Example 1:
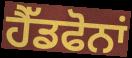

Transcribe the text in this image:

ਹੈੱਡਫੋਨਾਂ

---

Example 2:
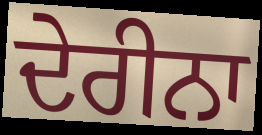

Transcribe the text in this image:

ਦੇਰੀਨਾ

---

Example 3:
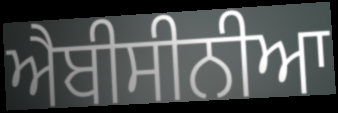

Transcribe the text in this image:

ਐਬੀਸੀਨੀਆ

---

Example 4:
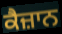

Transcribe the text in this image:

ਕੈਜ਼ਾਨ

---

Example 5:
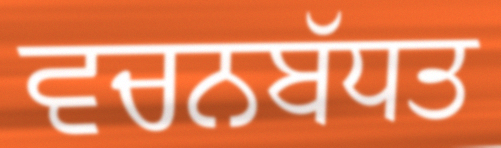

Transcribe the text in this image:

ਵਚਨਬੱਧਤ